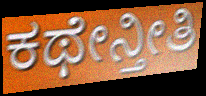
ಕಥೇನ್ತೀತಿ